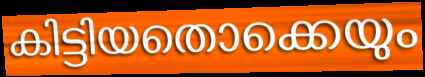
കിട്ടിയതൊക്കെയും